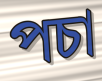
পচা